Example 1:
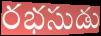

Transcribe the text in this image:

రభసుడు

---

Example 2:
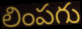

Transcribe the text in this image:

లింపగు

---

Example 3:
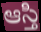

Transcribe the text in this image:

ఆస్తి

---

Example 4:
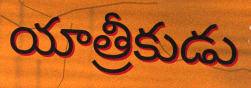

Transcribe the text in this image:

యాత్రీకుడు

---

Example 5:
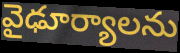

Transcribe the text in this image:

వైఢూర్యాలను